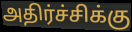
அதிர்ச்சிக்கு